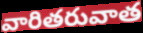
వారితరువాత